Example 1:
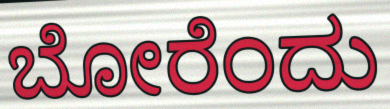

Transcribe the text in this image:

ಬೋರೆಂದು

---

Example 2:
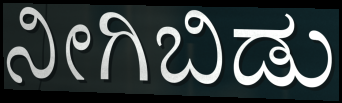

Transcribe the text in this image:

ನೀಗಿಬಿಡು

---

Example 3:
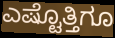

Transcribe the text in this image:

ಎಷ್ಟೊತ್ತಿಗೂ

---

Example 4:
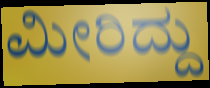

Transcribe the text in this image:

ಮೀರಿದ್ದು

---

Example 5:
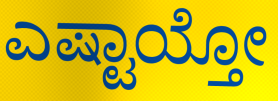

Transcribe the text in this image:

ಎಷ್ಟಾಯ್ತೋ